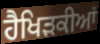
ਹੈਖਿੜਕੀਆਂ